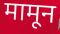
मामून